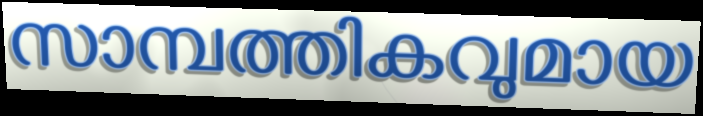
സാമ്പത്തികവുമായ